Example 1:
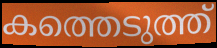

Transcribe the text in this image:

കത്തെടുത്ത്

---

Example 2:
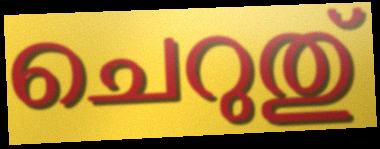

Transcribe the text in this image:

ചെറുതു്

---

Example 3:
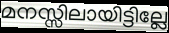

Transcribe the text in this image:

മനസ്സിലായിട്ടില്ലേ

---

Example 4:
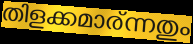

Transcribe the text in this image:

തിളക്കമാര്ന്നതും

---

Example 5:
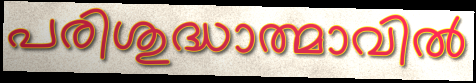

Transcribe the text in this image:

പരിശുദ്ധാത്മാവിൽ